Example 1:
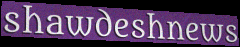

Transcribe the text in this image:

shawdeshnews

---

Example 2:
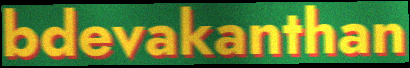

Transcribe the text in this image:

bdevakanthan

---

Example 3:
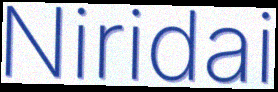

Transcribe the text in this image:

Niridai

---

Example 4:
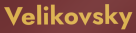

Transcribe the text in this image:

Velikovsky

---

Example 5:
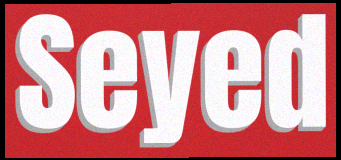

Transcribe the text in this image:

Seyed